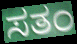
ಸತಂ